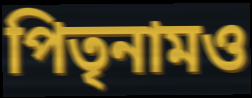
পিতৃনামও